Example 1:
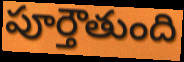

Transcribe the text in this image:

పూర్తౌతుంది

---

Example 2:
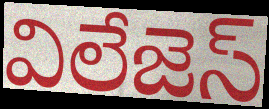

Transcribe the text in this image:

విలేజెస్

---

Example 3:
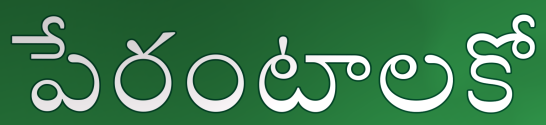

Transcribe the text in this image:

పేరంటాలకో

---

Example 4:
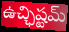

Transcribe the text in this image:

ఉచ్ఛిష్టమ్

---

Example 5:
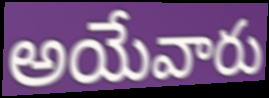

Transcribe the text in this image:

అయేవారు